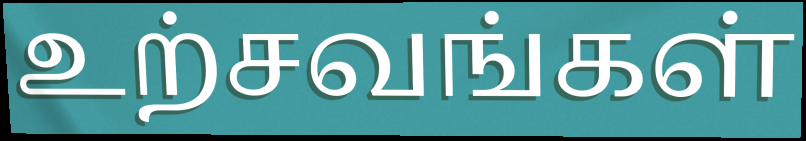
உற்சவங்கள்